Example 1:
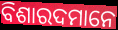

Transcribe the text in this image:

ବିଶାରଦମାନେ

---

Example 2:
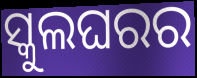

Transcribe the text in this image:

ସ୍କୁଲଘରର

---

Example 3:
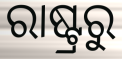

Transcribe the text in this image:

ରାଷ୍ଟ୍ରରୁ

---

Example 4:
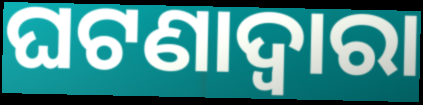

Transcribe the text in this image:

ଘଟଣାଦ୍ୱାରା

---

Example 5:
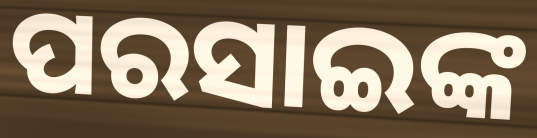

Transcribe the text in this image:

ପରସାଇଙ୍କ